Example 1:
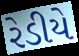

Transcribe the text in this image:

રેડીયે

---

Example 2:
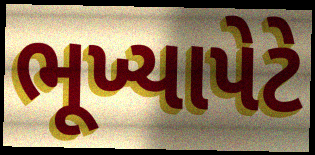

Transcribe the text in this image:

ભૂખ્યાપેટે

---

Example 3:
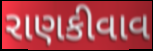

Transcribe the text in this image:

રાણકીવાવ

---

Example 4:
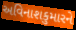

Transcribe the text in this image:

અવિનાશકુમારને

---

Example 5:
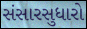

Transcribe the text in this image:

સંસારસુધારો